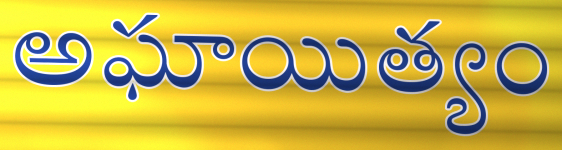
అఘాయిత్యం